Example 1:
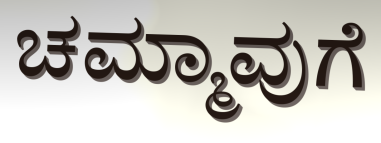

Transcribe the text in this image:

ಚಮ್ಮಾವುಗೆ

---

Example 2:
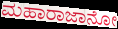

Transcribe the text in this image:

ಮಹಾರಾಜಾನೋ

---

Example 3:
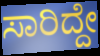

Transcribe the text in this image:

ಸಾರಿದ್ದೇ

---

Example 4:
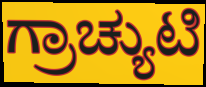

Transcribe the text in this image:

ಗ್ರಾಚ್ಯುಟಿ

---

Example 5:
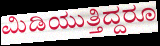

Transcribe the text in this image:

ಮಿಡಿಯುತ್ತಿದ್ದರೂ